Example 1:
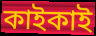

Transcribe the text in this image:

কাইকাই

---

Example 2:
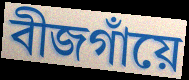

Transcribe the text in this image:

বীজগাঁয়ে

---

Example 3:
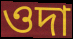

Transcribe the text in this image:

ওদা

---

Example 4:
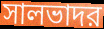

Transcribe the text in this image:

সালভাদর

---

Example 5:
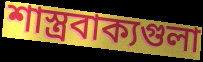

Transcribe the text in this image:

শাস্ত্রবাক্যগুলা